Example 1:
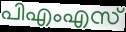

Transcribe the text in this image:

പിഎംഎസ്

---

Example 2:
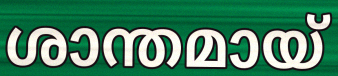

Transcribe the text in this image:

ശാന്തമായ്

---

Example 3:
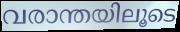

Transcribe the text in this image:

വരാന്തയിലൂടെ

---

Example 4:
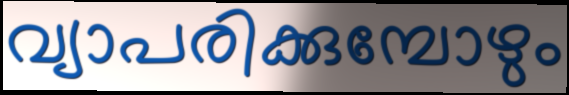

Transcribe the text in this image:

വ്യാപരിക്കുമ്പോഴും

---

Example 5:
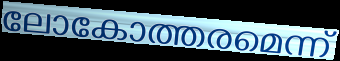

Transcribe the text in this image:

ലോകോത്തരമെന്ന്